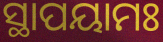
ସ୍ଥାପୟାମଃ